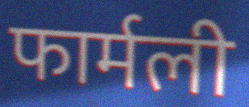
फार्मली